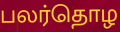
பலர்தொழ